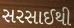
સરસાઈથી